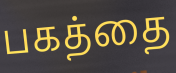
பகத்தை